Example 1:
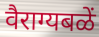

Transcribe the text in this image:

वैराग्यबळें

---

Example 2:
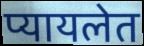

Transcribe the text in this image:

प्यायलेत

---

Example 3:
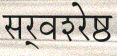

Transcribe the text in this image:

सर्वश्रेष्ठ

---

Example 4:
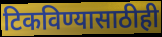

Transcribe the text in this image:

टिकविण्यासाठीही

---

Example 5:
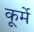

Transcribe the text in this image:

कूर्मे